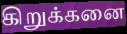
கிறுக்கனை